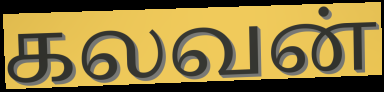
கலவன்